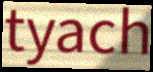
tyach